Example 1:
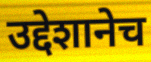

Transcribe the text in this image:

उद्देशानेच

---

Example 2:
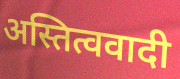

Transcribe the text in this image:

अस्तित्ववादी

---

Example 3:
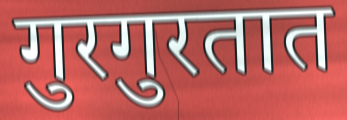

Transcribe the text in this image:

गुरगुरतात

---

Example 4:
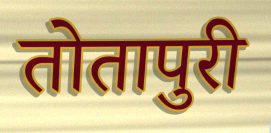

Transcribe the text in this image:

तोतापुरी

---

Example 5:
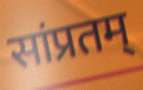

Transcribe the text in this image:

सांप्रतम्